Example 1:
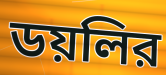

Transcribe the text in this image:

ডয়লির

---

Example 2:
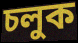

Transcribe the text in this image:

চলুক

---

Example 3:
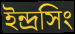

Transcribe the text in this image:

ইন্দ্রসিং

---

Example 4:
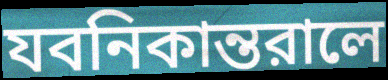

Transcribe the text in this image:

যবনিকান্তরালে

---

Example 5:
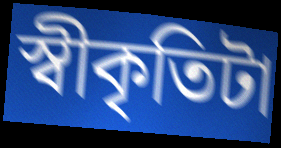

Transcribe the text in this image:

স্বীকৃতিটা